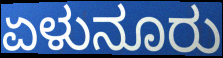
ಏಳುನೂರು